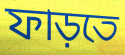
ফাড়তে